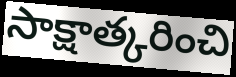
సాక్షాత్కరించి